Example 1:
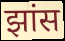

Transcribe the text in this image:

झांस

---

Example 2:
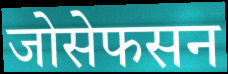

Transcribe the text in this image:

जोसेफसन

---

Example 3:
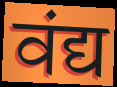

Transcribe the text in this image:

वंद्य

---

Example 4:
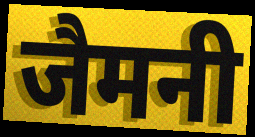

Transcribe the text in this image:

जैमनी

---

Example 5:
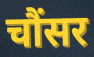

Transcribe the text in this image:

चौंसर